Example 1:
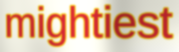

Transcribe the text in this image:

mightiest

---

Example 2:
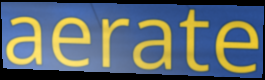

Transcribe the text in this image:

aerate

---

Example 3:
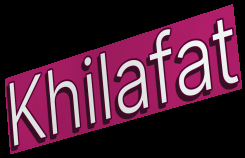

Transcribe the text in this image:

Khilafat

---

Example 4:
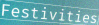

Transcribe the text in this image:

Festivities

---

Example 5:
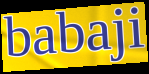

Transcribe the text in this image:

babaji